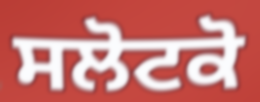
ਸਲੋਟਕੋ